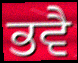
ਭਵੈ